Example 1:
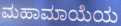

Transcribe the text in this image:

ಮಹಾಮಾಯೆಯ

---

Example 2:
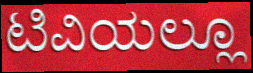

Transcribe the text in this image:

ಟಿವಿಯಲ್ಲೂ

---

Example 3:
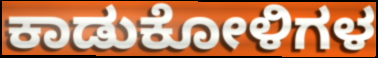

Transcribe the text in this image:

ಕಾಡುಕೋಳಿಗಳ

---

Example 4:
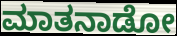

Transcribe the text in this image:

ಮಾತನಾಡೋ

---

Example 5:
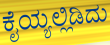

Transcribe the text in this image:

ಕೈಯ್ಯಲ್ಲಿಡಿದು